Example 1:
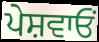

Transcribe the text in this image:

ਪੇਸ਼ਵਾਓਂ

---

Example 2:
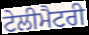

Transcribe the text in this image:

ਟੇਲੀਮੈਟਰੀ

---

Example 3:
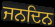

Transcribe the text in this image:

ਜਨਦਿਨ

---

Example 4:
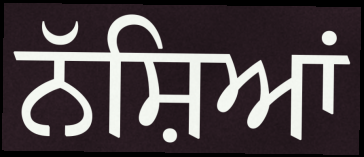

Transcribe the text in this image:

ਨੱਸ਼ਿਆਂ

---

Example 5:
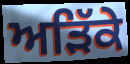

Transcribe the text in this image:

ਅੜਿੱਕੇ